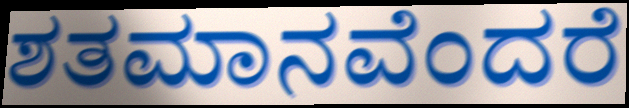
ಶತಮಾನವೆಂದರೆ